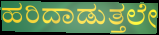
ಹರಿದಾಡುತ್ತಲೇ